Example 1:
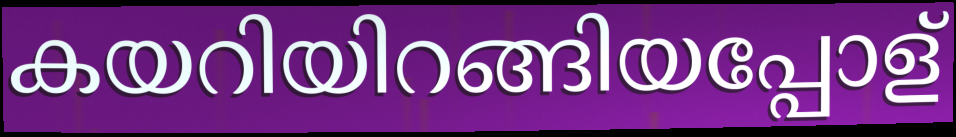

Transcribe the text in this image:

കയറിയിറങ്ങിയപ്പോള്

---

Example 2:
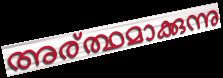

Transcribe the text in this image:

അര്ത്ഥമാക്കുന്നു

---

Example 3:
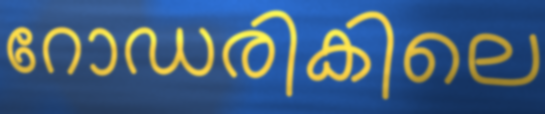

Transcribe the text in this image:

റോഡരികിലെ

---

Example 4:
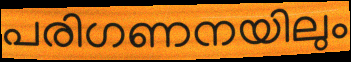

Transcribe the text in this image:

പരിഗണനയിലും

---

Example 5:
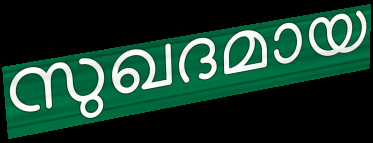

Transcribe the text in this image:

സുഖദമായ